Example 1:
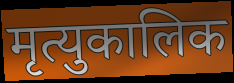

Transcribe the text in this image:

मृत्युकालिक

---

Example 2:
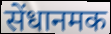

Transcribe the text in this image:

सेंधानमक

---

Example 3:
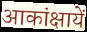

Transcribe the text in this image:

आकांक्षायें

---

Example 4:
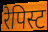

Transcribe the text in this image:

रेपिस्ट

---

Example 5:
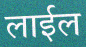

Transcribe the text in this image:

लाईल